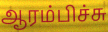
ஆரம்பிச்சு